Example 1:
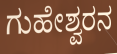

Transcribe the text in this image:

ಗುಹೇಶ್ವರನ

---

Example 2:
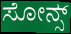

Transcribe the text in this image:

ಸೋನ್ಸ್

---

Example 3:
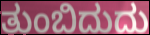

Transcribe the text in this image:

ತುಂಬಿದುದು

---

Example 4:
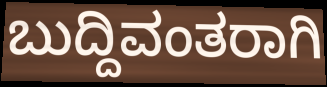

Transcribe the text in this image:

ಬುದ್ದಿವಂತರಾಗಿ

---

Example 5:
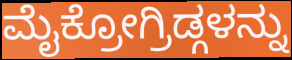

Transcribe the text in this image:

ಮೈಕ್ರೋಗ್ರಿಡ್ಗಳನ್ನು